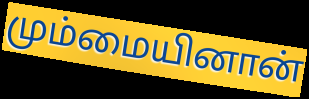
மும்மையினான்